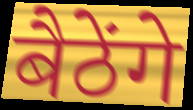
बैठेंगे